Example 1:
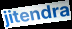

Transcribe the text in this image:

jitendra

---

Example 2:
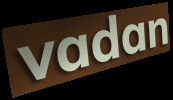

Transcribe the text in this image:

vadan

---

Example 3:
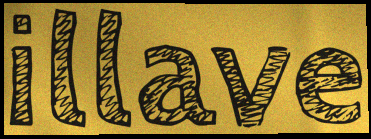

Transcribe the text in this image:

illave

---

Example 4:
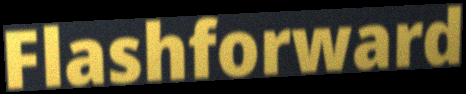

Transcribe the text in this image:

Flashforward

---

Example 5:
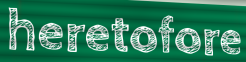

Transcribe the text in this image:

heretofore